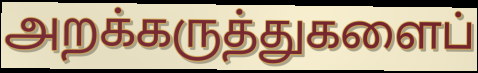
அறக்கருத்துகளைப்